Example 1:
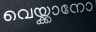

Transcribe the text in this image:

വെയ്ക്കാനോ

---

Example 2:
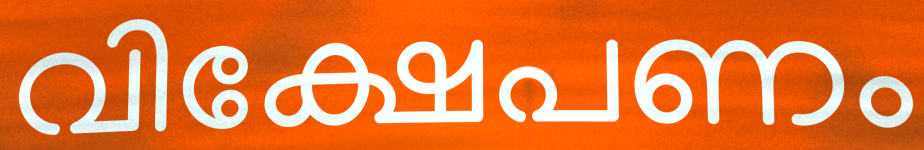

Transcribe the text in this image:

വിക്ഷേപണം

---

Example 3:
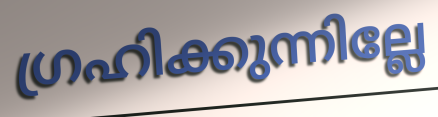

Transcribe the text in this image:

ഗ്രഹിക്കുന്നില്ലേ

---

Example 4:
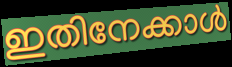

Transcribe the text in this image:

ഇതിനേക്കാൾ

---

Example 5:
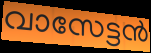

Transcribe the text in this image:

വാസേട്ടൻ